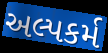
અલ્પકર્મ